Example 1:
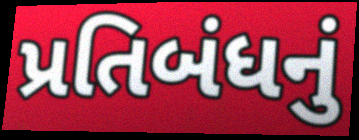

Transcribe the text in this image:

પ્રતિબંધનું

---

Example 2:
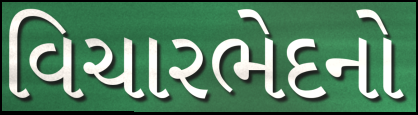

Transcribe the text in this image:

વિચારભેદનો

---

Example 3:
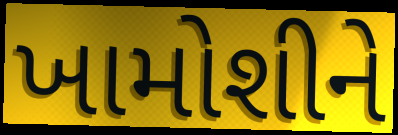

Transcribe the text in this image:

ખામોશીને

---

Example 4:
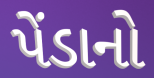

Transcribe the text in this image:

પેંડાનો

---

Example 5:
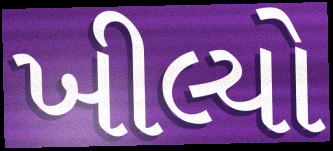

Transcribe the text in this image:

ખીલ્યો